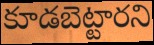
కూడబెట్టారని